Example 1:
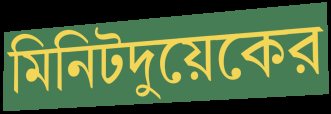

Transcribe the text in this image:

মিনিটদুয়েকের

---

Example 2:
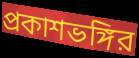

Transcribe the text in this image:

প্রকাশভঙ্গির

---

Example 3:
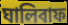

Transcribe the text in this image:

ঘালিবাফ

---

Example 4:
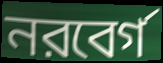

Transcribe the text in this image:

নরবের্গ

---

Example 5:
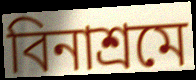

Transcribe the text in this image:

বিনাশ্রমে